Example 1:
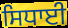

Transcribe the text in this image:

ਸਿਧਾਈ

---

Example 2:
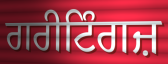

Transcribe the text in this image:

ਗਰੀਟਿੰਗਜ਼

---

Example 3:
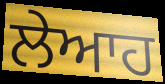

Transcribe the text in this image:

ਲੇਆਹ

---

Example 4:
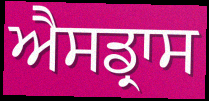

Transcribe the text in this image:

ਐਸਡ੍ਰਾਸ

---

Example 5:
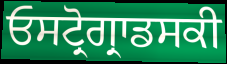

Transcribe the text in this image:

ਓਸਟ੍ਰੋਗ੍ਰਾਡਸਕੀ